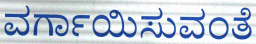
ವರ್ಗಾಯಿಸುವಂತೆ